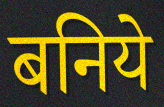
बनिये